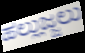
ಹಲ್ಲುಜ್ಜಲು